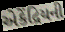
એકેંદ્રિયની